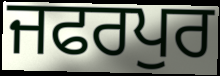
ਜਫਰਪੁਰ